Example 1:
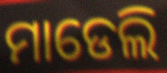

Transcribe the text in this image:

ମାଡେଲି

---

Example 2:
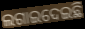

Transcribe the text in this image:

ଲଗାଇଦେଇଛି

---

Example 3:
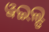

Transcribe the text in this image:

ୱଇଲ୍ଡ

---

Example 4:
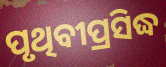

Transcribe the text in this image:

ପୃଥିବୀପ୍ରସିଦ୍ଧ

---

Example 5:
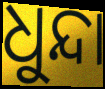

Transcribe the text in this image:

ଧୁନ୍ଦା